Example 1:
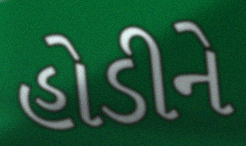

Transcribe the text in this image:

હોડીને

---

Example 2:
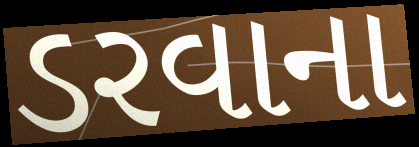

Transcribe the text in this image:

ડરવાના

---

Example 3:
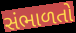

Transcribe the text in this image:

સંભાળતો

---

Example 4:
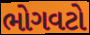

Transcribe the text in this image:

ભોગવટો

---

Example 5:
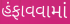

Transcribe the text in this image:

હંફાવવામાં